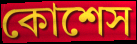
কোশেস